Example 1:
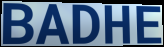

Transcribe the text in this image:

BADHE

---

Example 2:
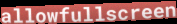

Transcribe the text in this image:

allowfullscreen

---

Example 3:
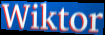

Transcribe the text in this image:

Wiktor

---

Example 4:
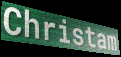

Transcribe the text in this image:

Christam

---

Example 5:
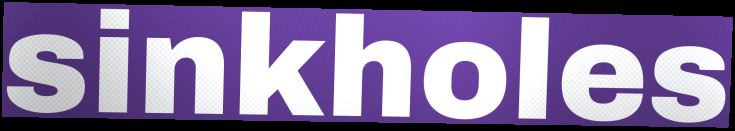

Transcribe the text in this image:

sinkholes